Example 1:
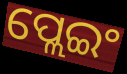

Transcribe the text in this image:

ପ୍ଲେଇଂ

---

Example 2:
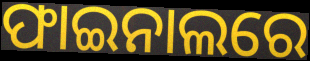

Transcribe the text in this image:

ଫାଇନାଲରେ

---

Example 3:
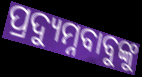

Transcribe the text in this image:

ପ୍ରଦ୍ୟୁମ୍ନବାବୁଙ୍କୁ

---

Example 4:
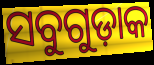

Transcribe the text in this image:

ସବୁଗୁଡ଼ାକ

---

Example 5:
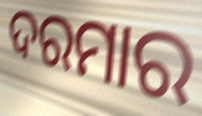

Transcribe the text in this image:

ଦରମାର